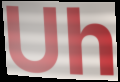
Uh